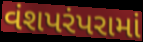
વંશપરંપરામાં